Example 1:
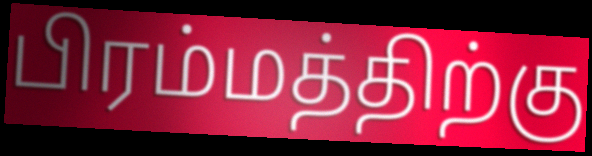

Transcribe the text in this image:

பிரம்மத்திற்கு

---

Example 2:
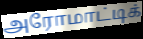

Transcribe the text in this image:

அரோமாட்டிக்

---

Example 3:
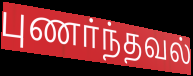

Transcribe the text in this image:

புணர்ந்தவல்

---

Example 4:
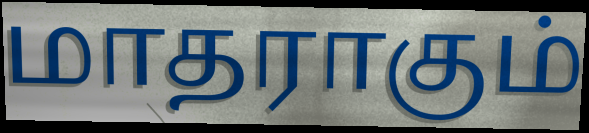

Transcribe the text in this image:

மாதராகும்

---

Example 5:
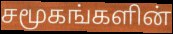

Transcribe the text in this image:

சமூகங்களின்